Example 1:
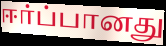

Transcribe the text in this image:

ஈர்ப்பானது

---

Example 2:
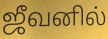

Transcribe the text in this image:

ஜீவனில்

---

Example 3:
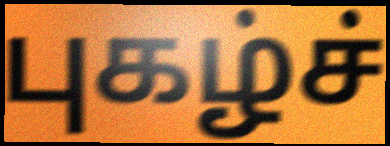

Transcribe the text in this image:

புகழ்ச்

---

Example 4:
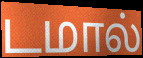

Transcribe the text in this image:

டமால்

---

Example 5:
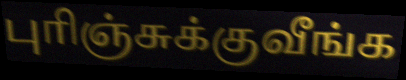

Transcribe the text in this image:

புரிஞ்சுக்குவீங்க